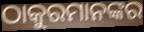
ଠାକୁରମାନଙ୍କର